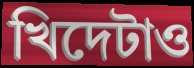
খিদেটাও